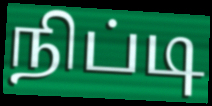
நிப்டி